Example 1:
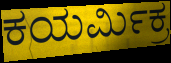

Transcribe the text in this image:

ಕಯರ್ಮಿಕ್ರ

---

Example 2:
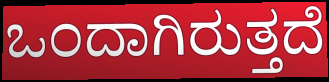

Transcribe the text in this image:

ಒಂದಾಗಿರುತ್ತದೆ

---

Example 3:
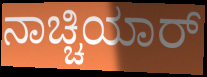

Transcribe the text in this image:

ನಾಚ್ಚಿಯಾರ್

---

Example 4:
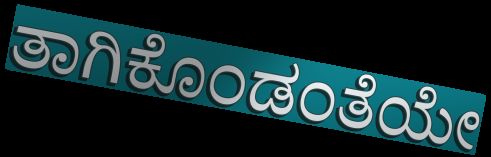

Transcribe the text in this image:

ತಾಗಿಕೊಂಡಂತೆಯೇ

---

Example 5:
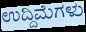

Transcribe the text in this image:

ಉದ್ದಿಮೆಗಳು